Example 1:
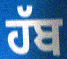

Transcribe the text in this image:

ਹੱਬ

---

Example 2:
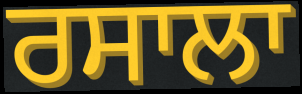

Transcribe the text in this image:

ਰਸਾਲਾ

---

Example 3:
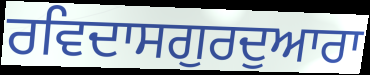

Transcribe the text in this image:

ਰਵਿਦਾਸਗੁਰਦੁਆਰਾ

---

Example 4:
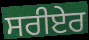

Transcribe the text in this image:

ਸਰੀਏਰ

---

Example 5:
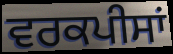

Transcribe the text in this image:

ਵਰਕਪੀਸਾਂ